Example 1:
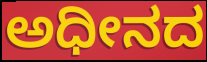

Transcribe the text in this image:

ಅಧೀನದ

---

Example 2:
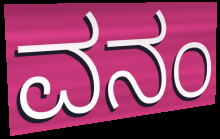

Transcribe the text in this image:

ವನಂ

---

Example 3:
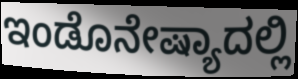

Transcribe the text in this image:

ಇಂಡೊನೇಷ್ಯಾದಲ್ಲಿ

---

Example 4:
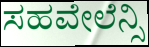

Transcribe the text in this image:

ಸಹವೇಲೆನ್ಸಿ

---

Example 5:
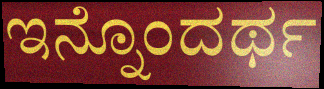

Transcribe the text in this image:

ಇನ್ನೊಂದರ್ಥ